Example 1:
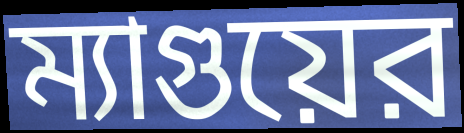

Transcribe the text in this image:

ম্যাগুয়ের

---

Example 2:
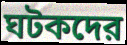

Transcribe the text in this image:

ঘটকদের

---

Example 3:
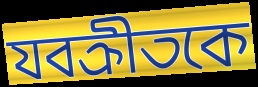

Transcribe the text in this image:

যবক্রীতকে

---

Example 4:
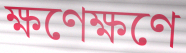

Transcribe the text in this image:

ক্ষণেক্ষণে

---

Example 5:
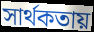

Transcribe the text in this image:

সার্থকতায়